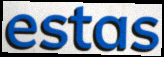
estas